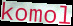
komol